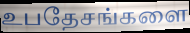
உபதேசங்களை